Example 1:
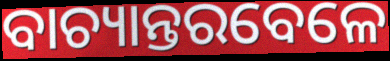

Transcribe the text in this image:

ବାଚ୍ୟାନ୍ତରବେଳେ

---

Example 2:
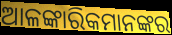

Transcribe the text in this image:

ଆଳଙ୍କାରିକମାନଙ୍କର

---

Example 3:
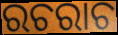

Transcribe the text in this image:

ରଚରାଚ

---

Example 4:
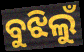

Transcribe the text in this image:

ବୁଝିଲୁଁ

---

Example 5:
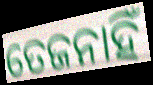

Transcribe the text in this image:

ତେଜନାହିଁ